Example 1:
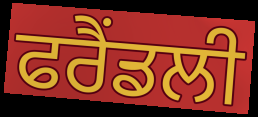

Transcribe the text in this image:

ਫਰੈਂਡਲੀ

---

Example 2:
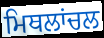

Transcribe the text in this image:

ਮਿਥਲਾਂਚਲ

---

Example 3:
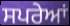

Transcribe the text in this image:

ਸਪਰੇਆਂ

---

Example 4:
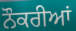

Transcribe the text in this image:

ਨੌਕਰੀਆਂ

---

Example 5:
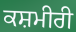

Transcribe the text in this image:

ਕਸ਼ਮੀਰੀ